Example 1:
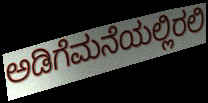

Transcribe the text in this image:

ಅಡಿಗೆಮನೆಯಲ್ಲಿರಲಿ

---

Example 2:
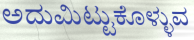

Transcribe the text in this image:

ಅದುಮಿಟ್ಟುಕೊಳ್ಳುವ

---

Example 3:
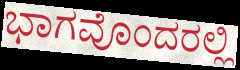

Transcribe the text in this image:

ಭಾಗವೊಂದರಲ್ಲಿ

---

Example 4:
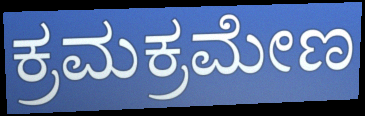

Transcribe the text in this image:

ಕ್ರಮಕ್ರಮೇಣ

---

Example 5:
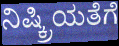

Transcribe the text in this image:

ನಿಷ್ಕ್ರಿಯತೆಗೆ